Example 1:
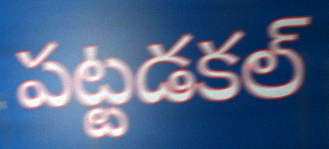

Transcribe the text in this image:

పట్టడకల్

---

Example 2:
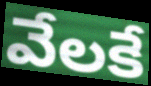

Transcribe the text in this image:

వేలకే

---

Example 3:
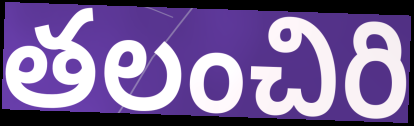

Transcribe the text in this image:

తలంచిరి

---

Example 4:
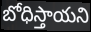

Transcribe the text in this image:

బోధిస్తాయని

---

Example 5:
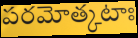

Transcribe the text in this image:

పరమోత్కటాః